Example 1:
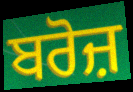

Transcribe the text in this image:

ਬਰੋਜ਼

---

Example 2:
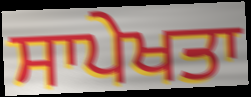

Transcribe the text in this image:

ਸਾਪੇਖਤਾ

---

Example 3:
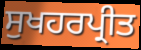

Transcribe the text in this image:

ਸੁਖਹਰਪ੍ਰੀਤ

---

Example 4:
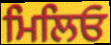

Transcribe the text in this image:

ਮਿਲਿਓ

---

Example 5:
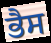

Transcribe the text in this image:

ਭੈਸ